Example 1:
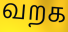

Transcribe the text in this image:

வறக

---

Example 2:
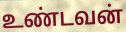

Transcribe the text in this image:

உண்டவன்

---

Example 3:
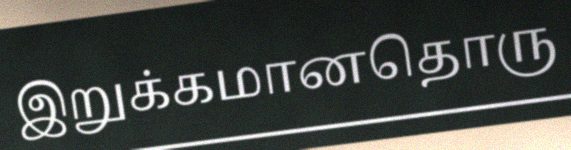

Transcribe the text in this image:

இறுக்கமானதொரு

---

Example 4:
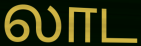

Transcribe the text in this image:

லாட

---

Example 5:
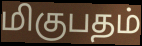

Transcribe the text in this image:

மிகுபதம்